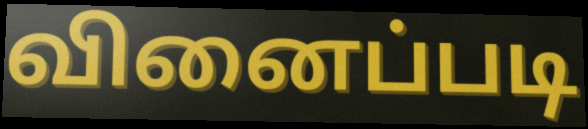
வினைப்படி